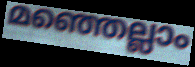
മഞ്ഞെല്ലാം